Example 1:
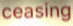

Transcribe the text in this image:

ceasing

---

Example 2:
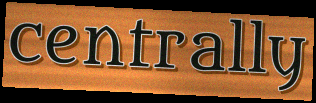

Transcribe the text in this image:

centrally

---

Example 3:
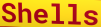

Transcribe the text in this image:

Shells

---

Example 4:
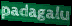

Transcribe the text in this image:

padagalu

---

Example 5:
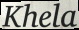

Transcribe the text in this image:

Khela